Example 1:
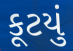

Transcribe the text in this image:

કૂટયું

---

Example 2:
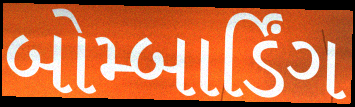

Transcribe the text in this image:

બોમ્બાર્ડિંગ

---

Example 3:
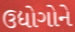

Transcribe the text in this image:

ઉદ્યોગોને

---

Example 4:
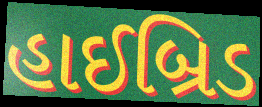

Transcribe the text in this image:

હાઈબ્રિડ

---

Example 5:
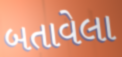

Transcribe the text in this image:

બતાવેલા